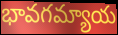
భావగమ్యాయ